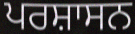
ਪਰਸ਼ਾਸਨ